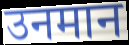
उनमान